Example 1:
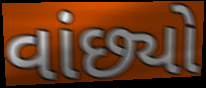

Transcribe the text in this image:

વાંછ્યો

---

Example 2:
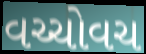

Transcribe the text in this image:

વચ્ચોવચ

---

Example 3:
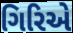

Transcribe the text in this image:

ગિરિએ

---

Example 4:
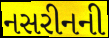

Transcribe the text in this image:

નસરીનની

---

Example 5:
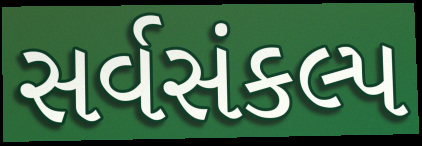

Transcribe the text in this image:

સર્વસંકલ્પ